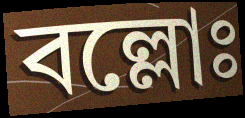
বল্লোঃ